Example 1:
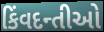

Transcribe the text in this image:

કિંવદન્તીઓ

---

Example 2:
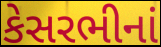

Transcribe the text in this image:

કેસરભીનાં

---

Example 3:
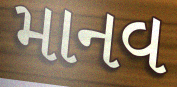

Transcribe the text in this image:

માનવ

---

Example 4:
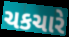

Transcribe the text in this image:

ચકચારે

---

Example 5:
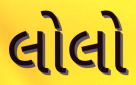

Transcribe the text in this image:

લોલો